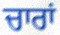
ਚਾਰਾਂ